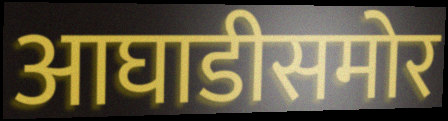
आघाडीसमोर